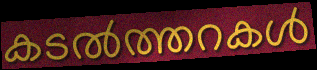
കടൽത്തറകൾ